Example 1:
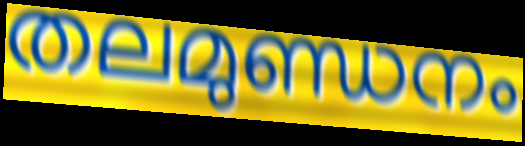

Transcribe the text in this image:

തലമുണ്ഡനം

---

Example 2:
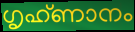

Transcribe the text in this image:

ഗൃഹ്ണാനം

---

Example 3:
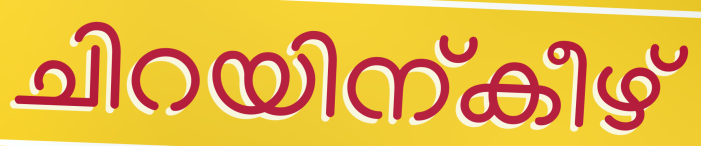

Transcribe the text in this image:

ചിറയിന്കീഴ്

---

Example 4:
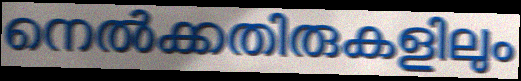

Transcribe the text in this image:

നെൽക്കതിരുകളിലും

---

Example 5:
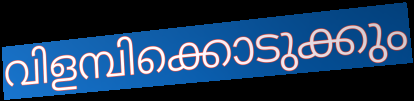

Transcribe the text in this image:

വിളമ്പിക്കൊടുക്കും